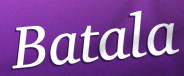
Batala